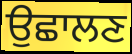
ਉਛਾਲਣ